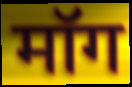
मॉग